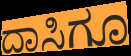
ದಾಸಿಗೂ